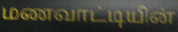
மணவாட்டியின்